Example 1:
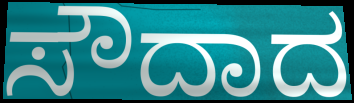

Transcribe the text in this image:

ಸೌದಾದ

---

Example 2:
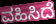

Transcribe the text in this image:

ವಹಿಸಿದೆ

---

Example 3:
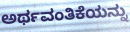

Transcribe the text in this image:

ಅರ್ಥವಂತಿಕೆಯನ್ನು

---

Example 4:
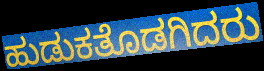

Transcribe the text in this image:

ಹುಡುಕತೊಡಗಿದರು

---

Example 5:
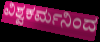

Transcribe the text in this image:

ವಿಶ್ವಕರ್ಮನಿಂದ